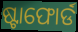
ଷ୍ଟାଫୋର୍ଡ